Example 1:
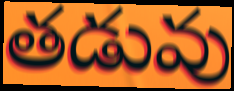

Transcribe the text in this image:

తడువు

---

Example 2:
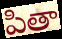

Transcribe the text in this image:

పితా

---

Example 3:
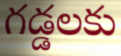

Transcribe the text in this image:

గడ్డలకు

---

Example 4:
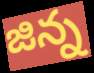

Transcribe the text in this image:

జిన్న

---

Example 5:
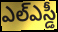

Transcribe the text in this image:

ఎల్ఎస్డీ